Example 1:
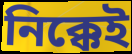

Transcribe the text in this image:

নিক্কেই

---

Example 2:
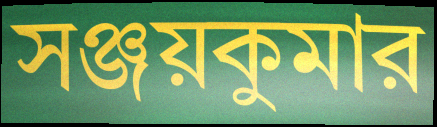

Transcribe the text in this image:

সঞ্জয়কুমার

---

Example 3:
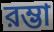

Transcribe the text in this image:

রম্ভা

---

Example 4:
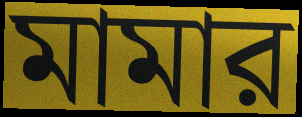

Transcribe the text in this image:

মামার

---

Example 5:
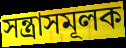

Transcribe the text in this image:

সন্ত্রাসমূলক